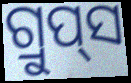
ଗ୍ରୁପ୍‌ସ